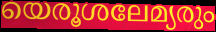
യെരൂശലേമ്യരും